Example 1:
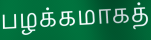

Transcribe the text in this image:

பழக்கமாகத்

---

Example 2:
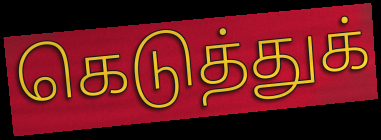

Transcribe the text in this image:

கெடுத்துக்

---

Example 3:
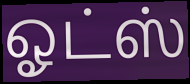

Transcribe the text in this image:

ஓட்ஸ்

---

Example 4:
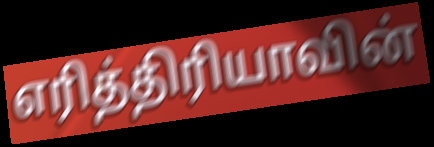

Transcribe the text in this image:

எரித்திரியாவின்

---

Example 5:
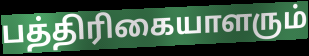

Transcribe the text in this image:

பத்திரிகையாளரும்